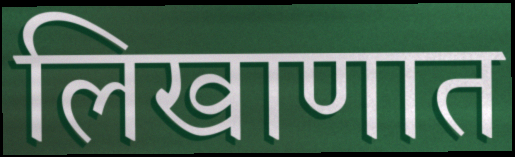
लिखाणात